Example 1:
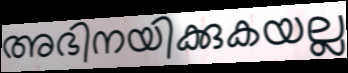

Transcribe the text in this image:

അഭിനയിക്കുകയല്ല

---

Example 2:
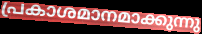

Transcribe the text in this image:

പ്രകാശമാനമാക്കുന്നു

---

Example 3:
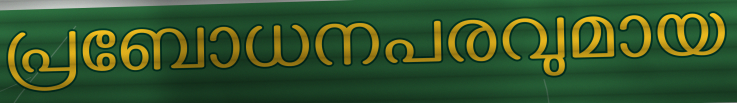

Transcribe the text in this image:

പ്രബോധനപരവുമായ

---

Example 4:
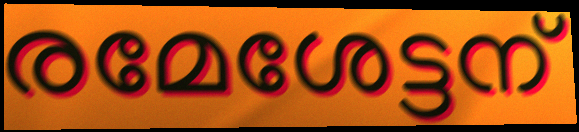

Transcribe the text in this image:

രമേശേട്ടന്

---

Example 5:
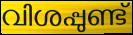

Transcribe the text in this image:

വിശപ്പുണ്ട്